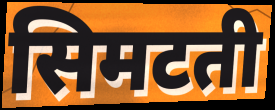
सिमटती